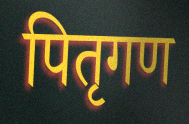
पितृगण